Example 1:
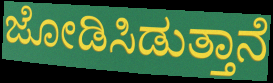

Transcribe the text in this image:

ಜೋಡಿಸಿಡುತ್ತಾನೆ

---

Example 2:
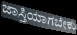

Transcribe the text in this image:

ಜಾಸ್ತಿಯಾಗಬೇಕು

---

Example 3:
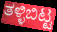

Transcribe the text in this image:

ತಳ್ಳಿಬಿಟ್ಟ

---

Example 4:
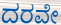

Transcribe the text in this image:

ದರವೇ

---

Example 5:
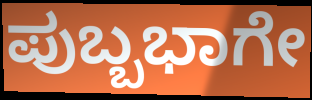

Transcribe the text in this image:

ಪುಬ್ಬಭಾಗೇ